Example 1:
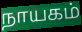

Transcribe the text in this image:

நாயகம்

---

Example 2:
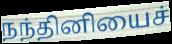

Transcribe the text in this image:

நந்தினியைச்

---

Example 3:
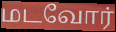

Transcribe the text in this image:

மடவோர்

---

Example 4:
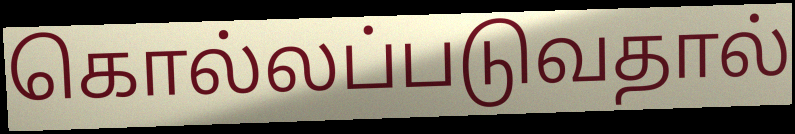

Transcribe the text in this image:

கொல்லப்படுவதால்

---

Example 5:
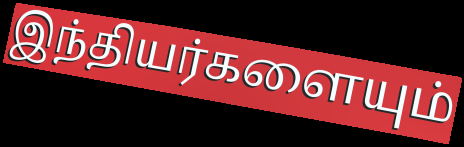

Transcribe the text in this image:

இந்தியர்களையும்